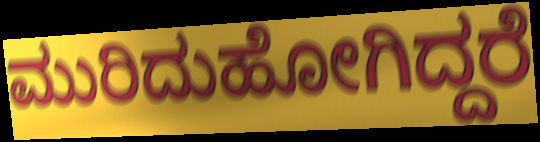
ಮುರಿದುಹೋಗಿದ್ದರೆ